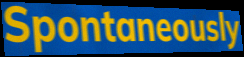
Spontaneously